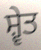
ਸ਼੍ਵੇਤ